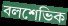
বলশেভিক